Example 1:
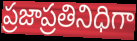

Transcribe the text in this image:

ప్రజాప్రతినిధిగా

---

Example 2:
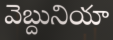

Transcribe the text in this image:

వెబ్దునియా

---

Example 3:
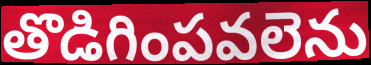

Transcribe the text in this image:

తొడిగింపవలెను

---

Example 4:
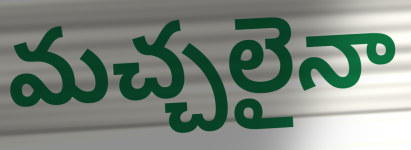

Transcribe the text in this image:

మచ్చలైనా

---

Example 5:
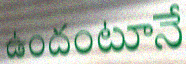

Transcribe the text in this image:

ఉందంటూనే